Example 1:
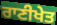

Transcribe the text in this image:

ਰਾਣੀਖੇਤ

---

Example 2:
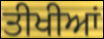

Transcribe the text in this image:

ਤੀਖੀਆਂ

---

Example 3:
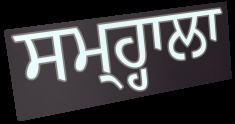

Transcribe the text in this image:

ਸਮ੍ਹ੍ਹਾਲਾ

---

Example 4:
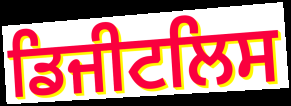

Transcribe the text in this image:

ਡਿਜੀਟਲਿਸ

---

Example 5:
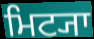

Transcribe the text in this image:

ਮਿਟ੍ਯਾ